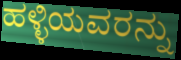
ಹಳ್ಳಿಯವರನ್ನು